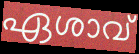
ഏശാവ്